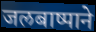
जलबाष्पाने